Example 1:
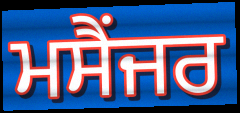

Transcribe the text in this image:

ਮਸੈਂਜਰ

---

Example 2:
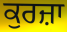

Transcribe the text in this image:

ਕੁਰਜ਼ਾ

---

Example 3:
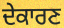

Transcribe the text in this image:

ਦੇਕਾਰਣ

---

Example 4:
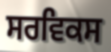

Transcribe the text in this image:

ਸਰਵਿਕਸ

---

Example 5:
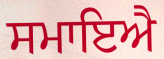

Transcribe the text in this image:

ਸਮਾਇਐ